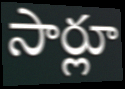
సార్లూ